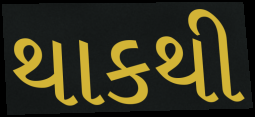
થાકથી